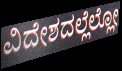
ವಿದೇಶದಲ್ಲೆಲ್ಲೋ